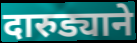
दारुड्याने